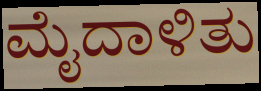
ಮೈದಾಳಿತು